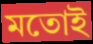
মতোই